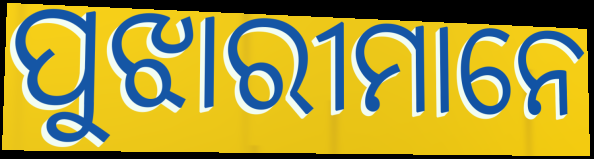
ପୁଝାରୀମାନେ